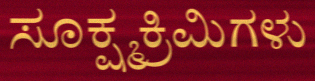
ಸೂಕ್ಷ್ಮಕ್ರಿಮಿಗಳು